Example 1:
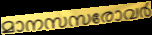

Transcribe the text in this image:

മാനസസരോവർ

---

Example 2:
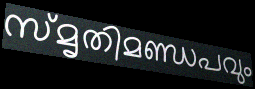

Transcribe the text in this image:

സ്മൃതിമണ്ഡപവും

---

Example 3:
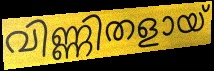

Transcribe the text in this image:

വിണ്ണിതളായ്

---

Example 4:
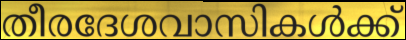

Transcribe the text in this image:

തീരദേശവാസികൾക്ക്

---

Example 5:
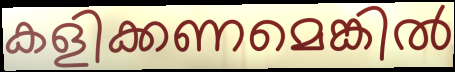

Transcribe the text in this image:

കളിക്കണമെങ്കിൽ